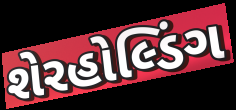
શેરહોલ્ડિંગ